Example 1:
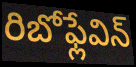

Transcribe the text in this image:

రిబోఫ్లేవిన్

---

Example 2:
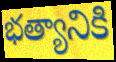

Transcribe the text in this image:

భత్యానికి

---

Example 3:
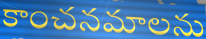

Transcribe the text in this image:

కాంచనమాలను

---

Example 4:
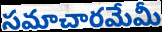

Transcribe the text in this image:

సమాచారమేమీ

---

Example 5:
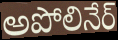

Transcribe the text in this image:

అపోలినేర్